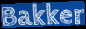
Bakker